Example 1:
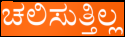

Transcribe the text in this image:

ಚಲಿಸುತ್ತಿಲ್ಲ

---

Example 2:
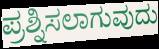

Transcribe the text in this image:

ಪ್ರಶ್ನಿಸಲಾಗುವುದು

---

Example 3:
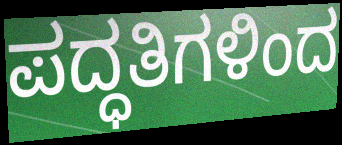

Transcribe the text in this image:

ಪದ್ಧತಿಗಳಿಂದ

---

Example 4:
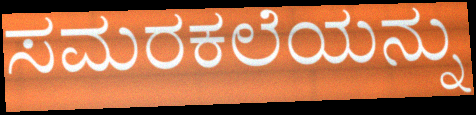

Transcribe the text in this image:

ಸಮರಕಲೆಯನ್ನು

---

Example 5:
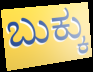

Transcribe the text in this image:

ಬುಕ್ಕು